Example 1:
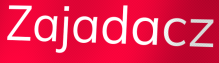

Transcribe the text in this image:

Zajadacz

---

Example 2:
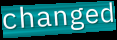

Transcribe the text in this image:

changed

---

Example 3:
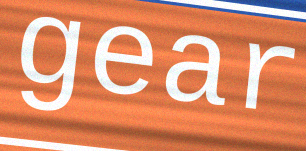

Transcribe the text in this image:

gear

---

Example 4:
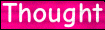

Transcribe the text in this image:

Thought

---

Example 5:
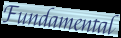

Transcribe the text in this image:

Fundamental